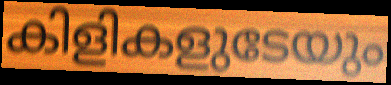
കിളികളുടേയും